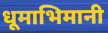
धूमाभिमानी